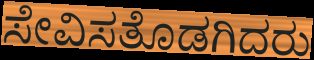
ಸೇವಿಸತೊಡಗಿದರು